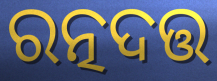
ରତ୍ନଦତ୍ତ